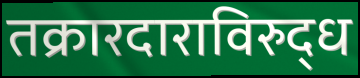
तक्रारदाराविरुद्ध